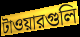
টাওয়ারগুলি